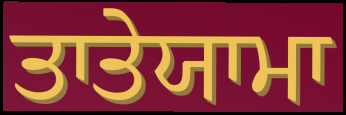
ਤਾਤੇਯਾਮਾ